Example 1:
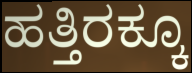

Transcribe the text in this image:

ಹತ್ತಿರಕ್ಕೂ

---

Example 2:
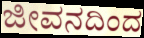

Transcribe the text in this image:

ಜೀವನದಿಂದ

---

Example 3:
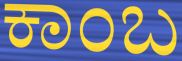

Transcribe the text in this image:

ಕಾಂಬ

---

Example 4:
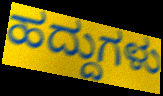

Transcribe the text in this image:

ಹದ್ದುಗಳು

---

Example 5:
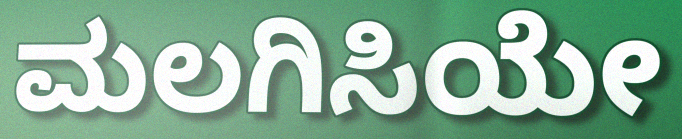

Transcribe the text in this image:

ಮಲಗಿಸಿಯೇ